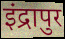
इंद्रापुर